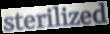
sterilized